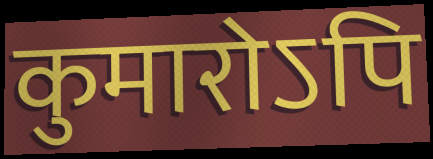
कुमारोऽपि